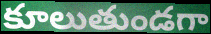
కూలుతుండగా